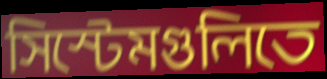
সিস্টেমগুলিতে